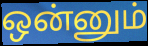
ஒன்னும்